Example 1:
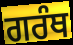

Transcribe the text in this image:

ਗਰੰਥ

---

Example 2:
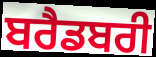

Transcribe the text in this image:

ਬਰੈਡਬਰੀ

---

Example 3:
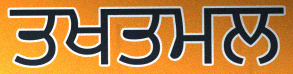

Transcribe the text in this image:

ਤਖਤਮਲ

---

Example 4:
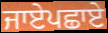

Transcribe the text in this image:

ਜਾਏਪਛਾਏ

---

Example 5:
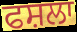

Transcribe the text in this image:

ਫਸ਼ਲਾ